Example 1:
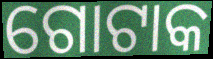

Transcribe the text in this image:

ଗୋଟାକ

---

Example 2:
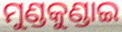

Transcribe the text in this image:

ମୁଣ୍ଡକୁଣ୍ଡାଇ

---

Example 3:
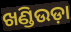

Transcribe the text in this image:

ଖଣ୍ଡିଉଡ଼ା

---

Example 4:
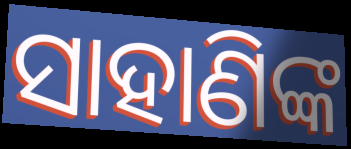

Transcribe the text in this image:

ସାହାଣିଙ୍କ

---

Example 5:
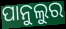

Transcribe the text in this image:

ପାନୁଲୁର